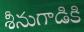
శీనుగాడికి